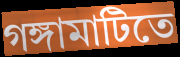
গঙ্গামাটিতে